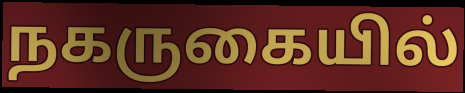
நகருகையில்